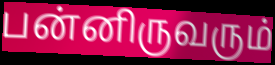
பன்னிருவரும்